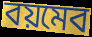
বয়মেব